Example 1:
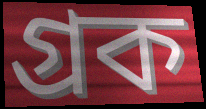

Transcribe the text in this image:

গ্রক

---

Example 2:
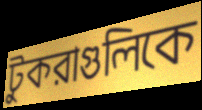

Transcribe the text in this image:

টুকরাগুলিকে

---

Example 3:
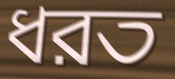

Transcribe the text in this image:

ধরত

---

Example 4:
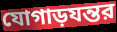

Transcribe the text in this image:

যোগাড়যন্তর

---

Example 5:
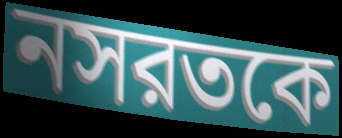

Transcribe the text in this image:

নসরতকে